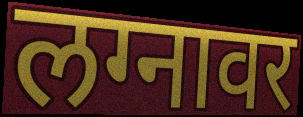
लग्नावर